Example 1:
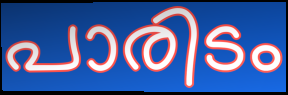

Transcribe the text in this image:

പാരിടം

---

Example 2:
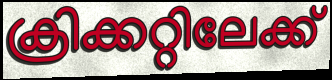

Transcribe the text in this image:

ക്രിക്കറ്റിലേക്ക്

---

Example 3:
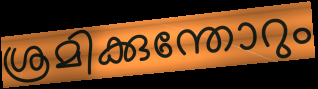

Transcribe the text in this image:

ശ്രമിക്കുന്തോറും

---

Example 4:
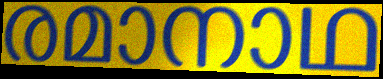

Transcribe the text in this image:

രമാനാഥ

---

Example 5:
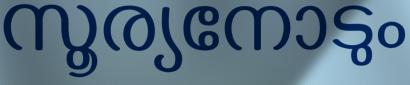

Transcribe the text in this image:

സൂര്യനോടും